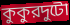
কুকুরদুটো